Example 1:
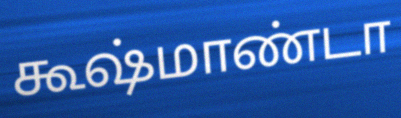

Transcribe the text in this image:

கூஷ்மாண்டா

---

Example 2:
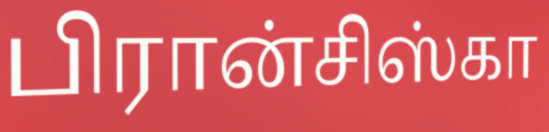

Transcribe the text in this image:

பிரான்சிஸ்கா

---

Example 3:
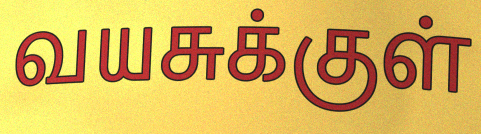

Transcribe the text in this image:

வயசுக்குள்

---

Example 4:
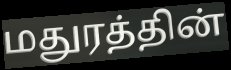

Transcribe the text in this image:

மதுரத்தின்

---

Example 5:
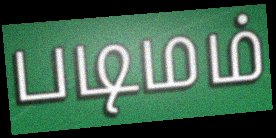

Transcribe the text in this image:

படிமம்